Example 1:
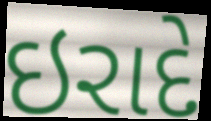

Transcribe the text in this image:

ઇરાદે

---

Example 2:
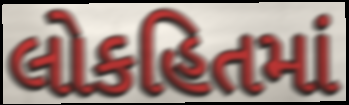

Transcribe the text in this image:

લોકહિતમાં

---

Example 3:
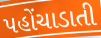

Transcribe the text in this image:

પહોંચાડાતી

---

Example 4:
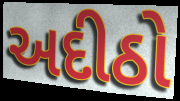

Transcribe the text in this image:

અદીઠો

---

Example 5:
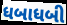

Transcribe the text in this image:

ધબાધબી